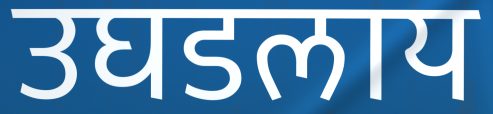
उघडलाय